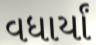
વધાર્યાં